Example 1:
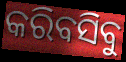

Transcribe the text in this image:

କରିବସିବୁ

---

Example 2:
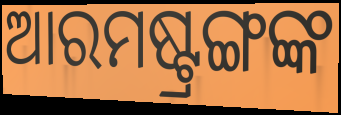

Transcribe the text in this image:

ଆରମଷ୍ଟ୍ରଙ୍ଗଙ୍କ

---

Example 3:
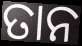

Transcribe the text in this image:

ତାନ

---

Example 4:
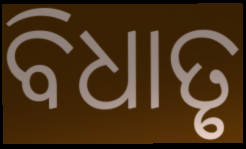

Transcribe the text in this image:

ବିଧାତୃ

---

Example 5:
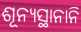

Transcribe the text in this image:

ଶୂନ୍ୟସ୍ଥାନାନି